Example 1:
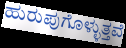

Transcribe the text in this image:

ಹುರುಪುಗೊಳ್ಳುತ್ತವೆ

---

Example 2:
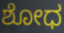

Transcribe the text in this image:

ಶೋಧ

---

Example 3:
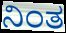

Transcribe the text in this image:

ನಿಂತ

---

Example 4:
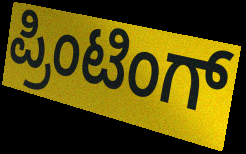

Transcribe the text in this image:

ಪ್ರಿಂಟಿಂಗ್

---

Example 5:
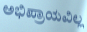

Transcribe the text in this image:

ಅಭಿಪ್ರಾಯವಿಲ್ಲ